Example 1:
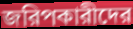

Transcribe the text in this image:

জরিপকারীদের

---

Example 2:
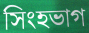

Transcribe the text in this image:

সিংহভাগ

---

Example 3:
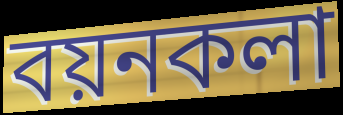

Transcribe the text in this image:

বয়নকলা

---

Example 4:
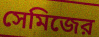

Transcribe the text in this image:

সেমিজের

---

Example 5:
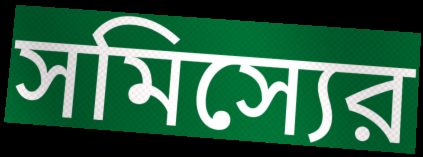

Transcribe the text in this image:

সমিস্যের